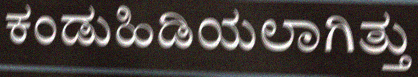
ಕಂಡುಹಿಡಿಯಲಾಗಿತ್ತು